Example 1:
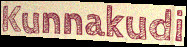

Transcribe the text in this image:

Kunnakudi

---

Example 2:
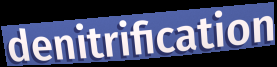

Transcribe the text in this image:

denitrification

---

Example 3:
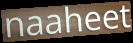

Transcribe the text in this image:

naaheet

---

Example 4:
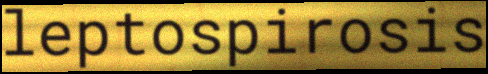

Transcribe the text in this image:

leptospirosis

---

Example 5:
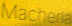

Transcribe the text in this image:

Macherla